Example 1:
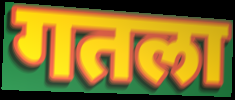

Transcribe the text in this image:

गतला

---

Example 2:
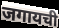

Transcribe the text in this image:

जगायची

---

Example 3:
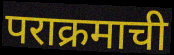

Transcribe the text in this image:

पराक्रमाची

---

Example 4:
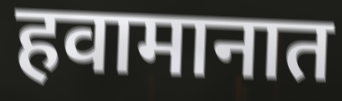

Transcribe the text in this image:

हवामानात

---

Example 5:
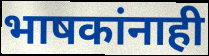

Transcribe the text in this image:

भाषकांनाही